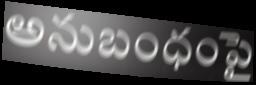
అనుబంధంపై